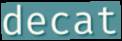
decat